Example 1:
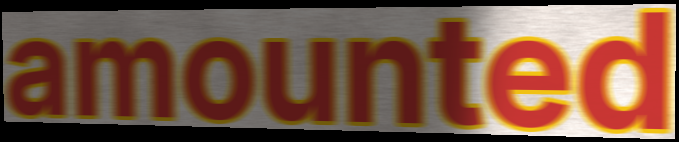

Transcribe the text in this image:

amounted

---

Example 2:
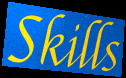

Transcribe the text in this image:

Skills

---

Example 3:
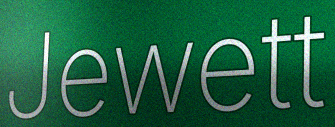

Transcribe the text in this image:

Jewett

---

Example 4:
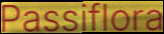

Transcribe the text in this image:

Passiflora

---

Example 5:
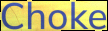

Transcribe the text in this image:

Choke